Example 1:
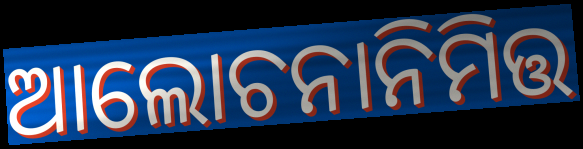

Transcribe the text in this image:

ଆଲୋଚନାନିମିତ୍ତ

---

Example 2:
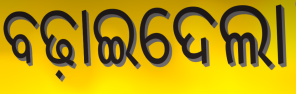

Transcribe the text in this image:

ବଢ଼ାଇଦେଲା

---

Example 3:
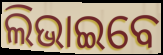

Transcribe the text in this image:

ଲିଭାଇବେ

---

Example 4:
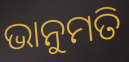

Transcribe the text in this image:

ଭାନୁମତି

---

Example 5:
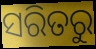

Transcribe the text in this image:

ସରିତରୁ